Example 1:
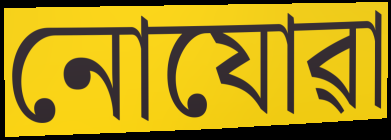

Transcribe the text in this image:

নোযোৱা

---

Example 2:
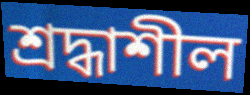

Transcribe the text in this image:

শ্ৰদ্ধাশীল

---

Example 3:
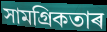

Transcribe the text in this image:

সামগ্ৰিকতাৰ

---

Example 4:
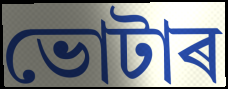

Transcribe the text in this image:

ভোটাৰ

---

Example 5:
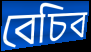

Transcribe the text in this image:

বেচিব